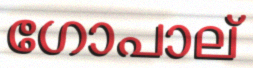
ഗോപാല്